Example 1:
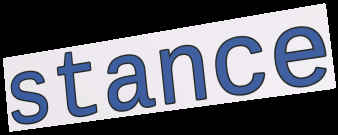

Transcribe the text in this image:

stance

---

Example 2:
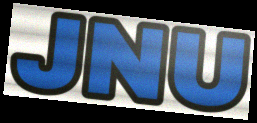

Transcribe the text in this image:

JNU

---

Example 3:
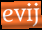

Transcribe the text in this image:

evij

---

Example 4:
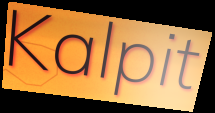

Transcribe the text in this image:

Kalpit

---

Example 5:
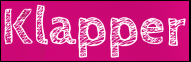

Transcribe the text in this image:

Klapper